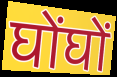
घोंघों